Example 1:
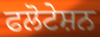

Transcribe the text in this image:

ਫਲੋਟੇਸ਼ਨ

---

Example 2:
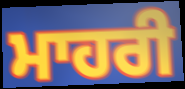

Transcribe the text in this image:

ਮਾਹਰੀ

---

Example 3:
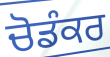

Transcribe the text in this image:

ਚੋਡੰਕਰ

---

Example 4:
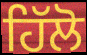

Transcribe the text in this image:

ਹਿੱਲੋ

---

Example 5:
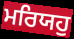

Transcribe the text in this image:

ਮਰਿਯਹੁ